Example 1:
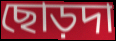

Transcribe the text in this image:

ছোড়দা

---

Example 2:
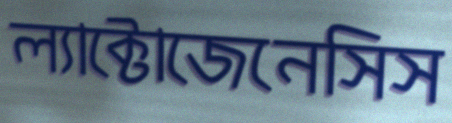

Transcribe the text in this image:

ল্যাক্টোজেনেসিস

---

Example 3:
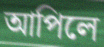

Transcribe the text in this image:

আপিলে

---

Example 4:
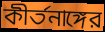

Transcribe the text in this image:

কীর্তনাঙ্গের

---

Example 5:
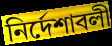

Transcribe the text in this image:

নির্দেশাবলী